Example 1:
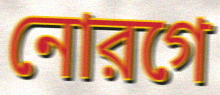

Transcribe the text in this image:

নোরগে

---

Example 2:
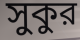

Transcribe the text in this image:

সুকুর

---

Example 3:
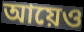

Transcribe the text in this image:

আয়েও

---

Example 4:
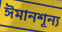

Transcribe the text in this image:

ঈমানশূন্য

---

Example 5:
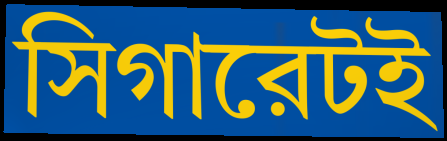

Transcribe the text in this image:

সিগারেটই